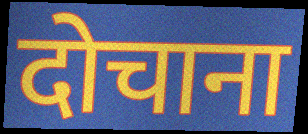
दोचाना